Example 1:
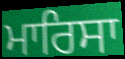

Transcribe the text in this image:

ਮਾਰਿਸਾ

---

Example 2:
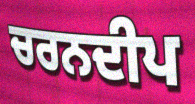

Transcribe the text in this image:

ਚਰਨਦੀਪ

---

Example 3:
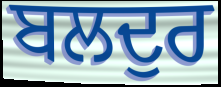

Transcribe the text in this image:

ਬਲਦੁਰ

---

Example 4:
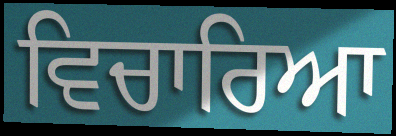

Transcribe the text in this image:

ਵਿਚਾਰਿਆ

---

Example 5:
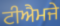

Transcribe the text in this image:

ਟੀਐਮਜੇ